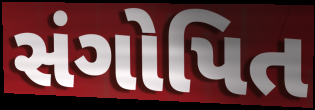
સંગોપિત